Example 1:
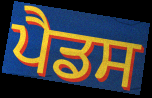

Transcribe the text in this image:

ਪੈਡਸ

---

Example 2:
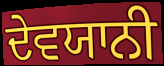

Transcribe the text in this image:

ਦੇਵਯਾਨੀ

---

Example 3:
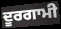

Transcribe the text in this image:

ਦੂਰਗਾਮੀ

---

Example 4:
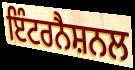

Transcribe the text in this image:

ਇੰਟਰਨੈਸ਼ਨਲ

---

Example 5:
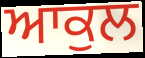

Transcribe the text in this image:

ਆਕੁਲ